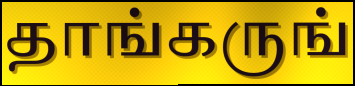
தாங்கருங்